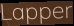
Lapper